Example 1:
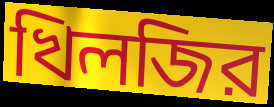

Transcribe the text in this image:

খিলজির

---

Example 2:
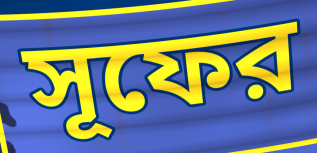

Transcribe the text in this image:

সূফের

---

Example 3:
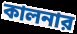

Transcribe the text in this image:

কালনার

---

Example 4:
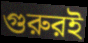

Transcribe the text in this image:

গুরুরই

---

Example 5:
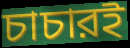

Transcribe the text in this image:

চাচারই